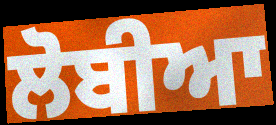
ਲੋਬੀਆ